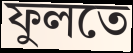
ফুলতে